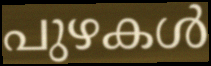
പുഴകൾ